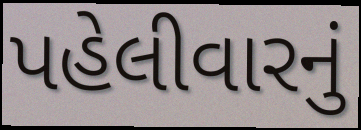
પહેલીવારનું